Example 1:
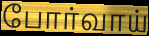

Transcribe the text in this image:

போர்வாய்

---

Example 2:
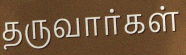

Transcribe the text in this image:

தருவார்கள்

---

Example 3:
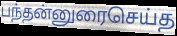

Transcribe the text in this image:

பந்தன்னுரைசெய்த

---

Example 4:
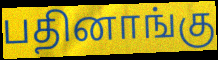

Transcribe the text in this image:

பதினாங்கு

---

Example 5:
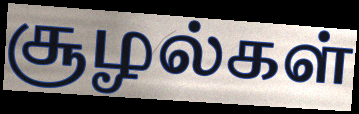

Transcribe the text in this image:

சூழல்கள்